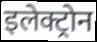
इलेक्ट्रोन